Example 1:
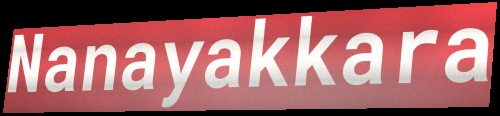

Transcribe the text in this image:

Nanayakkara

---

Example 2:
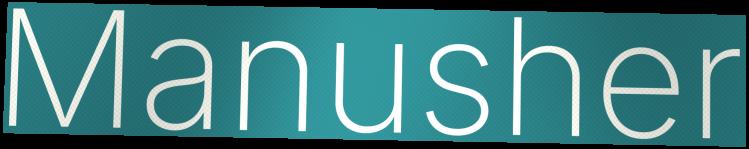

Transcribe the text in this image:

Manusher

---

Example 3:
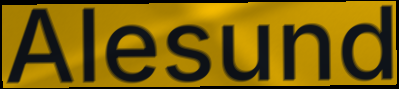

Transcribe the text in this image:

Alesund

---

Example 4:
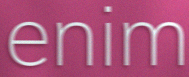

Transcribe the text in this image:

enim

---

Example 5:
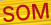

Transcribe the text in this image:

SOM